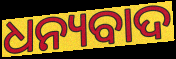
ଧନ୍ୟବାଦ